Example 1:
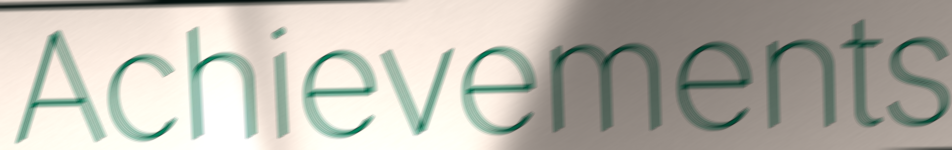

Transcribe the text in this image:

Achievements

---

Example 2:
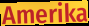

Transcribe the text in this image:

Amerika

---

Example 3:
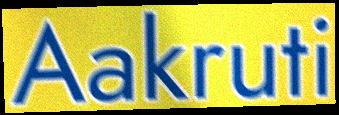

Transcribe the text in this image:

Aakruti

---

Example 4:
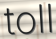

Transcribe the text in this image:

toll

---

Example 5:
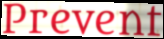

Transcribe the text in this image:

Prevent